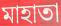
মাহাতা